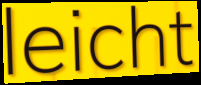
leicht